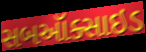
સબઑક્સાઇડ